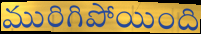
మురిగిపోయింది